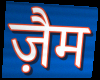
ज़ैम